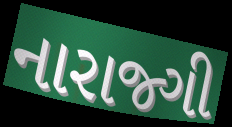
નારાજ્ગી